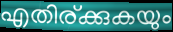
എതിര്ക്കുകയും